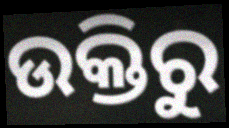
ଉକ୍ତିରୁ